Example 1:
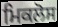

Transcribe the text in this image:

ਮਿਕਲੋਸ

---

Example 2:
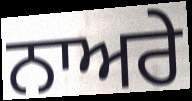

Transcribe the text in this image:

ਨਾਅਰੇ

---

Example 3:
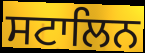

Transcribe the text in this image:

ਸਟਾਲਿਨ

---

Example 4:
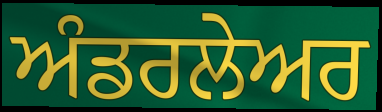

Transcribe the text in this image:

ਅੰਡਰਲੇਅਰ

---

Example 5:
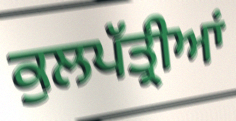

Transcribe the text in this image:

ਕੁਲਪੱਤ੍ਰੀਆਂ